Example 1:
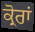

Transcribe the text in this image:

ਕ੍ਰੋਰਾਂ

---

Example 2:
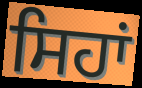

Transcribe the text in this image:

ਸਿਹਾਂ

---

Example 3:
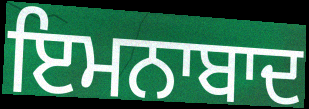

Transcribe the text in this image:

ਇਮਨਾਬਾਦ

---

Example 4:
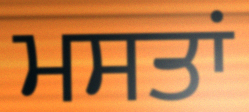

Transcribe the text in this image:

ਮਸਤਾਂ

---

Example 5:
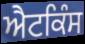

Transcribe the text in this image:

ਐਟਕਿੰਸ